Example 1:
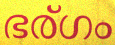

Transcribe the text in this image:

ഭര്ഗം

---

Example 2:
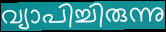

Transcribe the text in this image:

വ്യാപിച്ചിരുന്നു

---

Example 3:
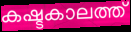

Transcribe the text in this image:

കഷ്ടകാലത്ത്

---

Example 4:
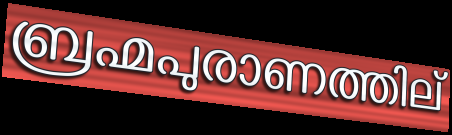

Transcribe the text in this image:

ബ്രഹ്മപുരാണത്തില്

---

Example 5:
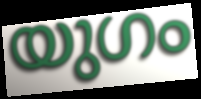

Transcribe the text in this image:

യുഗം